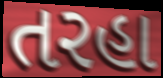
તરહા